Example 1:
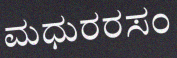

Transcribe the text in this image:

ಮಧುರರಸಂ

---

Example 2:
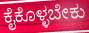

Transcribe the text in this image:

ಕೈಕೊಳ್ಳಬೇಕು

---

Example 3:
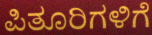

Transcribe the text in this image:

ಪಿತೂರಿಗಳಿಗೆ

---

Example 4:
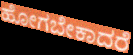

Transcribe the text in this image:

ಹೋಗಬೇಕಾದರೆ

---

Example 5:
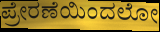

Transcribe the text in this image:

ಪ್ರೇರಣೆಯಿಂದಲೋ